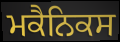
ਮਕੈਨਿਕਸ